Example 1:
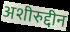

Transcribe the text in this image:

अशीरुद्दीन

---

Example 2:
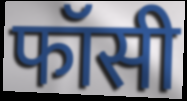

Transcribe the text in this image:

फॉसी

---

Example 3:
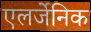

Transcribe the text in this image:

एलर्जेनिक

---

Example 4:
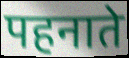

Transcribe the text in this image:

पहनाते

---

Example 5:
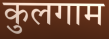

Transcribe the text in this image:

कुलगाम